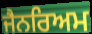
ਜੈਨਰਿਅਮ